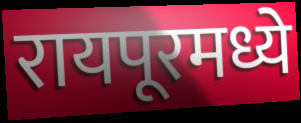
रायपूरमध्ये